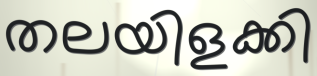
തലയിളക്കി